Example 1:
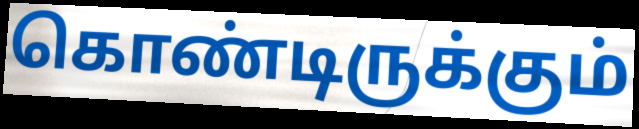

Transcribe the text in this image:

கொண்டிருக்கும்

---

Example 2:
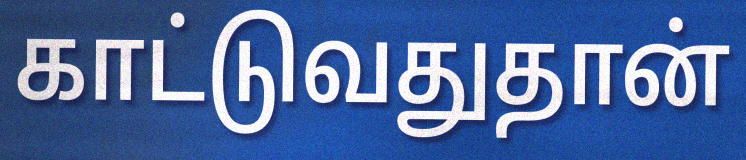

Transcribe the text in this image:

காட்டுவதுதான்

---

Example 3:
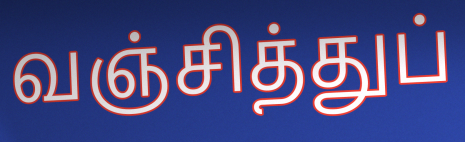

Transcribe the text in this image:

வஞ்சித்துப்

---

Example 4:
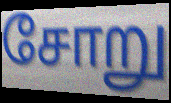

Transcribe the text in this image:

சோறு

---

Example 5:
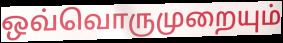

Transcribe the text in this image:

ஒவ்வொருமுறையும்